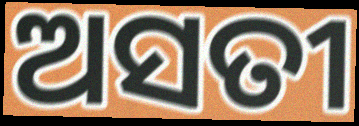
ଅସତୀ